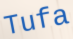
Tufa